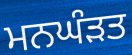
ਮਨਘੰੜਤ